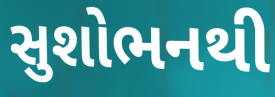
સુશોભનથી